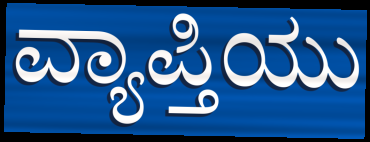
ವ್ಯಾಪ್ತಿಯು